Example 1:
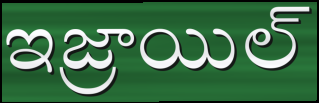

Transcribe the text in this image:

ఇజ్రాయిల్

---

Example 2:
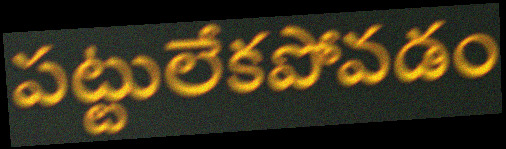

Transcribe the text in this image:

పట్టులేకపోవడం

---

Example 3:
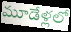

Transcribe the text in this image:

మూడేళ్లలో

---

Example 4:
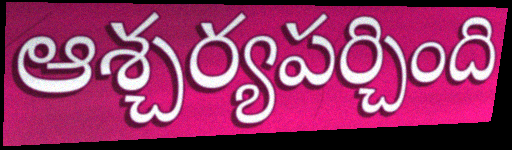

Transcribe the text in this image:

ఆశ్చర్యపర్చింది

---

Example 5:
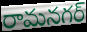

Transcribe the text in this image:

రామనగర్